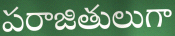
పరాజితులుగా